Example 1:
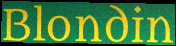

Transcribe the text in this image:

Blondin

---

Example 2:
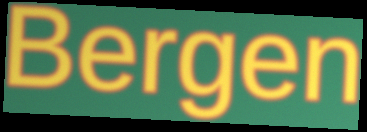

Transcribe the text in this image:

Bergen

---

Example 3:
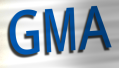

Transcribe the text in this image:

GMA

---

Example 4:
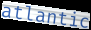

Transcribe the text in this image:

atlantic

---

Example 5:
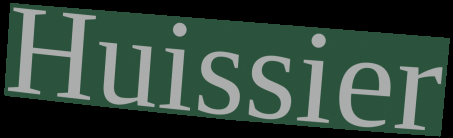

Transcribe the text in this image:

Huissier